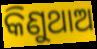
କିଣୁଥାଅ